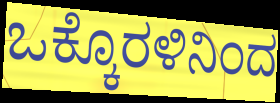
ಒಕ್ಕೊರಳಿನಿಂದ